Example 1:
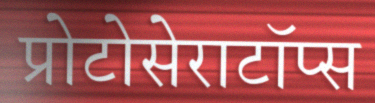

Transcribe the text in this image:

प्रोटोसेराटॉप्स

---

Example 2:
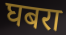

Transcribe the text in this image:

घबरा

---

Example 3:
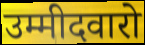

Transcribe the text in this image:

उम्मीदवारो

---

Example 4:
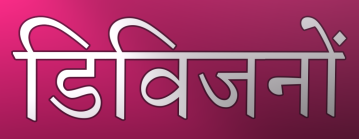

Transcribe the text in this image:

डिविजनों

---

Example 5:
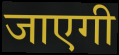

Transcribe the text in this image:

जाएगी